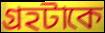
গ্রহটাকে